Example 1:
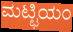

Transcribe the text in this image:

ಮಟ್ಟಿಯಂ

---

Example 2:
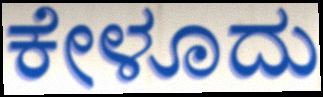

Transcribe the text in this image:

ಕೇಳೂದು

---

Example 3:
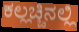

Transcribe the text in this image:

ಕಲ್ಲಚ್ಚಿನಲ್ಲಿ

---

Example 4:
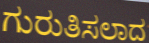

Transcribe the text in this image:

ಗುರುತಿಸಲಾದ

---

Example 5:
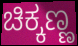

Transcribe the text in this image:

ಚಿಕ್ಕಣ್ಣ